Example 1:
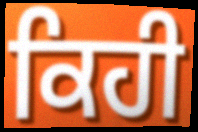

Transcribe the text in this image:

ਕਿਹੀ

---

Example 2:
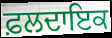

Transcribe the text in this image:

ਫ਼ਲਦਾਇਕ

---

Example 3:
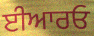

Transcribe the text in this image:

ਈਆਰਓ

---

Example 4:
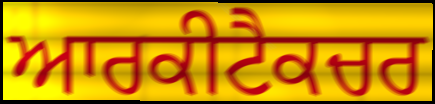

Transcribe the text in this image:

ਆਰਕੀਟੈਕਚਰ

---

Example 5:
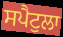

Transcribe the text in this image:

ਸਪੈਟੁਲਾ